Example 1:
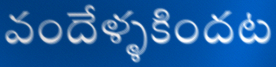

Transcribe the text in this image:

వందేళ్ళకిందట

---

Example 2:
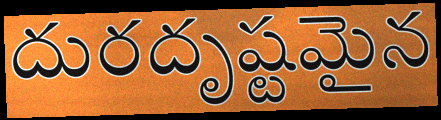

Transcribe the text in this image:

దురదృష్టమైన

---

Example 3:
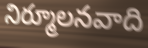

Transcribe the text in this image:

నిర్మూలనవాది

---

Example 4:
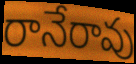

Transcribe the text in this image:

రానేరావు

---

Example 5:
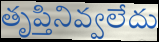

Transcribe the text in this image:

తృప్తినివ్వలేదు